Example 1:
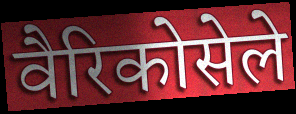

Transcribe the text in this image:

वैरिकोसेले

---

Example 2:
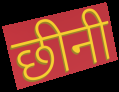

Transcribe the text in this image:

छीनी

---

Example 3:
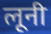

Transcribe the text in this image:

लूनी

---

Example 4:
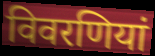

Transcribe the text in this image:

विवरणियां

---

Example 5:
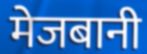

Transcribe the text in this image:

मेजबानी